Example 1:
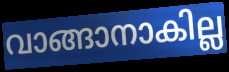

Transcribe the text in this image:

വാങ്ങാനാകില്ല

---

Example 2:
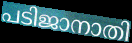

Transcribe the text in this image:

പടിജാനാതി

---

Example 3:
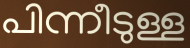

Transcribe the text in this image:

പിന്നീടുള്ള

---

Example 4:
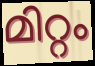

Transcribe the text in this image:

മിറ്റം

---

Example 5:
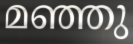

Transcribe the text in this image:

മഞ്ഞു